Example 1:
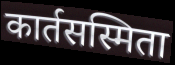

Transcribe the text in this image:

कार्तसस्मिता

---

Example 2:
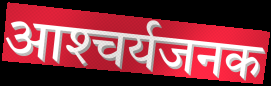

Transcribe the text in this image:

आश्‍चर्यजनक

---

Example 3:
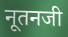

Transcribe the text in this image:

नूतनजी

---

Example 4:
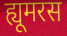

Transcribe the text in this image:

ह्यूमरस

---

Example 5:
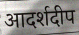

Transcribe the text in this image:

आदर्शदीप